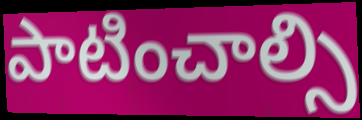
పాటించాల్సి